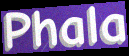
Phala